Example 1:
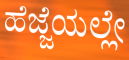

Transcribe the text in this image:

ಹೆಜ್ಜೆಯಲ್ಲೇ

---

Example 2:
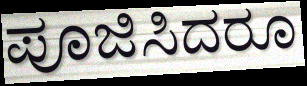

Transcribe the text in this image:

ಪೂಜಿಸಿದರೂ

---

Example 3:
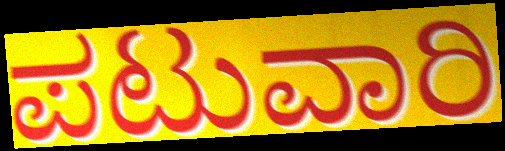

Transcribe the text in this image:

ಪಟುವಾರಿ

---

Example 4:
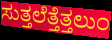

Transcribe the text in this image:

ಸುತ್ತಲೆತ್ತೆತ್ತಲುಂ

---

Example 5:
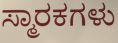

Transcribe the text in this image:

ಸ್ಮಾರಕಗಳು